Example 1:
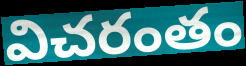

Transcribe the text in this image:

విచరంతం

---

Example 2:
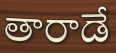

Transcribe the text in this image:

తారాడే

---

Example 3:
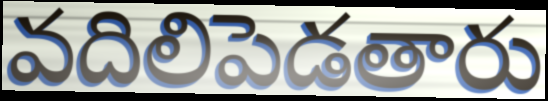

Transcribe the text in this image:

వదిలిపెడతారు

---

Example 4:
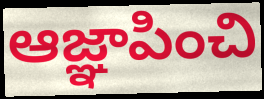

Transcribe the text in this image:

ఆజ్ఞాపించి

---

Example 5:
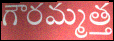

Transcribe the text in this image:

గౌరమ్మత్త